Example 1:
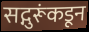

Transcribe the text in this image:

सद्गुरूंकडून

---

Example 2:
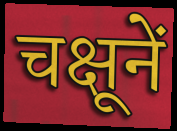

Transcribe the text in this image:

चक्षूनें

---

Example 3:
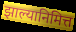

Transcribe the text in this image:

झाल्यानिमित्त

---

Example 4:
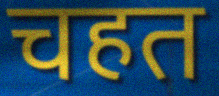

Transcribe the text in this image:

चहत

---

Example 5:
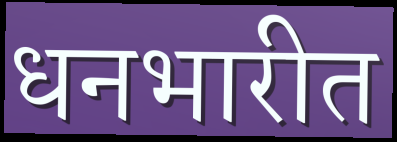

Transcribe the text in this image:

धनभारीत